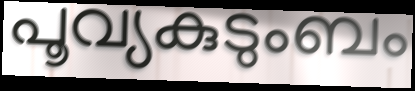
പൂവ്യകുടുംബം